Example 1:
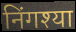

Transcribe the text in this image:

निंगश्या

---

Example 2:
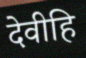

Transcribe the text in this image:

देवीहि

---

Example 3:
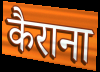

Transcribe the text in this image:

कैराना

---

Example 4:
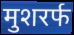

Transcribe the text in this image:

मुशरर्फ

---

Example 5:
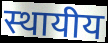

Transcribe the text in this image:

स्थायीय